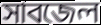
সাবজেল